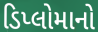
ડિપ્લોમાનો